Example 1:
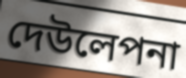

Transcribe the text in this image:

দেউলেপনা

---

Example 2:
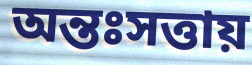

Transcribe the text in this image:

অন্তঃসত্তায়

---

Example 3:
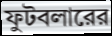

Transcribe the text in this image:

ফুটবলারের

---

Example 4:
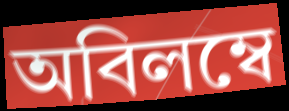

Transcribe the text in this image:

অবিলম্বে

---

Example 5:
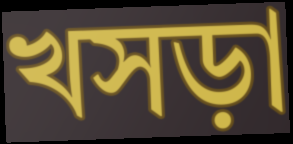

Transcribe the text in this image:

খসড়া